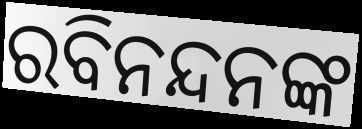
ରବିନନ୍ଦନଙ୍କ